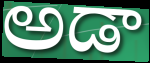
అడా